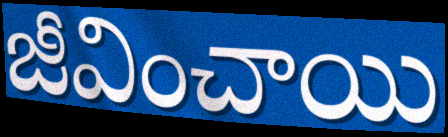
జీవించాయి